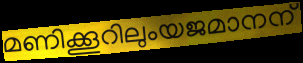
മണിക്കൂറിലുംയജമാനന്